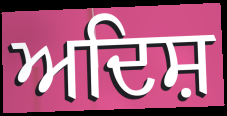
ਅਦਿਸ਼